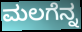
ಮಲಗೆನ್ನ